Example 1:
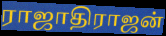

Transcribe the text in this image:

ராஜாதிராஜன்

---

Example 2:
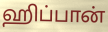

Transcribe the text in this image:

ஹிப்பான்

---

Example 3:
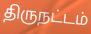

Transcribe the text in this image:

திருநட்டம்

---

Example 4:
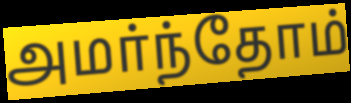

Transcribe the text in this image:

அமர்ந்தோம்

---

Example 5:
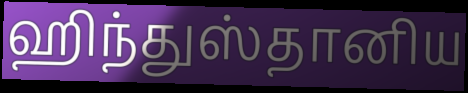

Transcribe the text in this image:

ஹிந்துஸ்தானிய